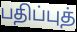
பதிப்புத்